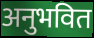
अनुभवित